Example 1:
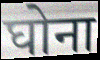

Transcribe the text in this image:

घोना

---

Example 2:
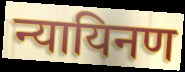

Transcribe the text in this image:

न्यायिनण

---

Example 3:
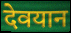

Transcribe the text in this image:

देवयान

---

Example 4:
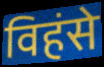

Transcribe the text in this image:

विहंसे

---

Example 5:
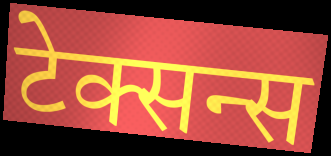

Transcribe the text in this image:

टेक्सन्स